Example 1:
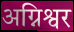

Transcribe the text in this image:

अग्निश्वर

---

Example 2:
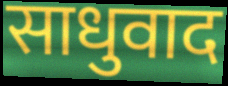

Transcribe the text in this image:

साधुवाद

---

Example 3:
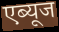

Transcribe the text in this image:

एब्यूज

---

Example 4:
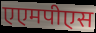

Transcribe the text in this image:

एएमपीएस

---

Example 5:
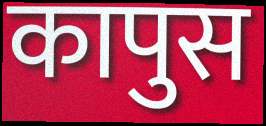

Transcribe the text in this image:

कापुस